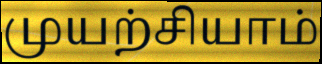
முயற்சியாம்